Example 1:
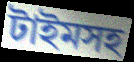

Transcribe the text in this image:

টাইমসহ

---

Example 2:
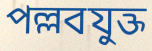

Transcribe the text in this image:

পল্লবযুক্ত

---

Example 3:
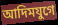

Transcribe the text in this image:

আদিমযুগে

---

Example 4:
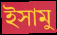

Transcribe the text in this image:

ইসামু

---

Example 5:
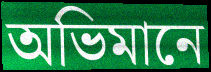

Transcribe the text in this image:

অভিমানে